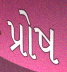
પ્રોષ